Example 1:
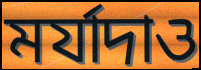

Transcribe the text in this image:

মর্যাদাও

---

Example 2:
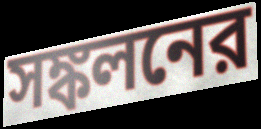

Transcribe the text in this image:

সঙ্কলনের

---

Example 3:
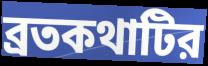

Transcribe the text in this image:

ব্রতকথাটির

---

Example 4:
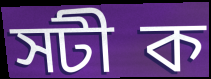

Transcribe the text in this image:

সটীক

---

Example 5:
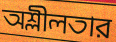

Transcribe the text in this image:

অশ্লীলতার